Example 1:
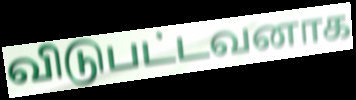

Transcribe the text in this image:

விடுபட்டவனாக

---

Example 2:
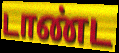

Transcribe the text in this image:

டாண்ட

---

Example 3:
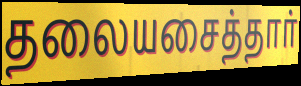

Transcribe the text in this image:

தலையசைத்தார்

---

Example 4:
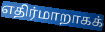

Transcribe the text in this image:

எதிர்மாறாகக்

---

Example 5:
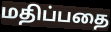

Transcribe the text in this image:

மதிப்பதை